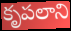
కృపలాని